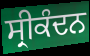
ਸ੍ਰੀਕੰਦਨ